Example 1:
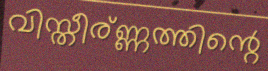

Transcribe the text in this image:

വിസ്തീര്ണ്ണത്തിന്റെ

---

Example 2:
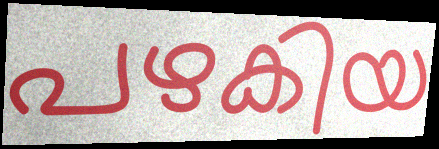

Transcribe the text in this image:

പഴകിയ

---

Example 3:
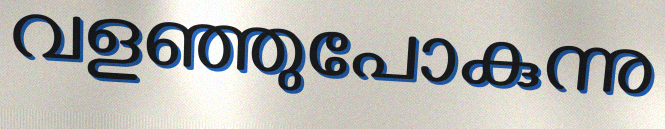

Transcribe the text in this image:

വളഞ്ഞുപോകുന്നു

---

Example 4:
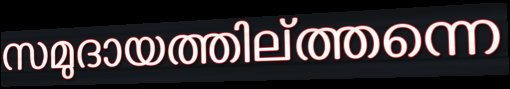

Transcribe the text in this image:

സമുദായത്തില്ത്തന്നെ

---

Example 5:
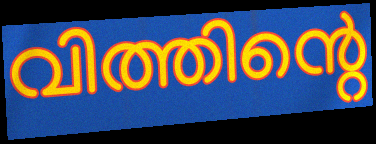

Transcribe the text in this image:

വിത്തിന്റെ